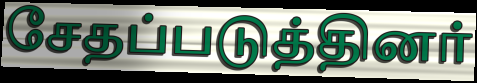
சேதப்படுத்தினர்